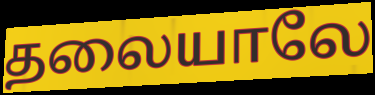
தலையாலே